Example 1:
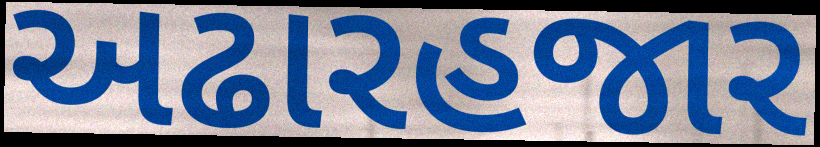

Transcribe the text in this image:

અઢારહજાર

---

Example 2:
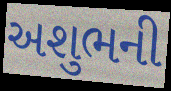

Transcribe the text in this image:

અશુભની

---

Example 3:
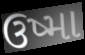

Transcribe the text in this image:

ઉષ્મા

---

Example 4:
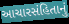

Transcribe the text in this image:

આચારસંહિતાનું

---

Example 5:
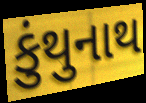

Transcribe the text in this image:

કુંથુનાથ